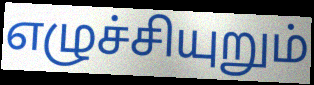
எழுச்சியுறும்